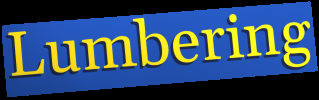
Lumbering